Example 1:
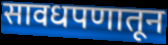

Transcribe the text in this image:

सावधपणातून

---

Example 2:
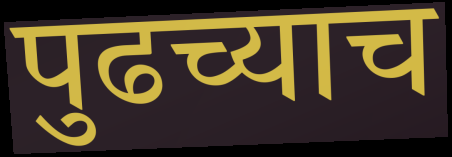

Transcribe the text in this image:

पुढच्याच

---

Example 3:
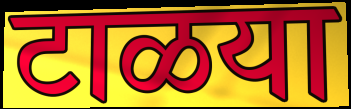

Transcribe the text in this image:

टाळया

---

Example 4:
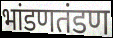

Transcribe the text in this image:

भांडणतंडण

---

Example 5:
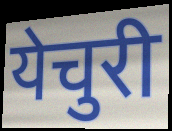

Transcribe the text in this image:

येचुरी